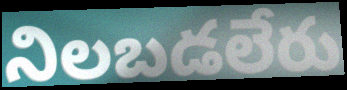
నిలబడలేరు